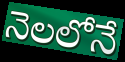
నెలలోనే